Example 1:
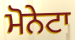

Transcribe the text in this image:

ਮੋਨੇਟਾ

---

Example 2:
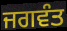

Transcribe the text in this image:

ਜਗਵੰਤ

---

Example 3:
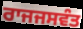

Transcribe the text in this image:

ਰਾਜਜਸਵੰਤ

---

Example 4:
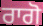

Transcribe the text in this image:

ਰਾਗੋ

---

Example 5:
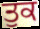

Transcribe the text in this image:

ਤੁਕ